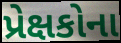
પ્રેક્ષકોના